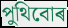
পুথিবোৰ